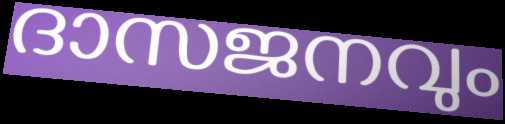
ദാസജനവും